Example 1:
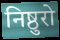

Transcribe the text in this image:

निष्ठुरो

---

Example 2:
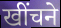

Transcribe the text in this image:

खींचने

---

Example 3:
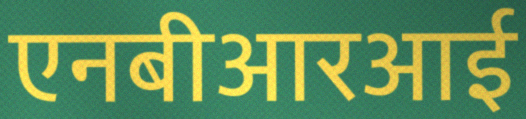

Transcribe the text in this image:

एनबीआरआई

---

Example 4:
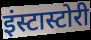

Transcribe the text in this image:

इंस्टास्टोरी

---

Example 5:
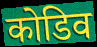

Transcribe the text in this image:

कोडिव